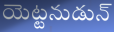
యెట్టనుడున్